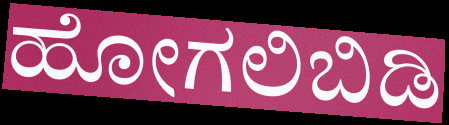
ಹೋಗಲಿಬಿಡಿ